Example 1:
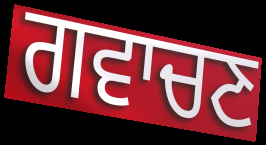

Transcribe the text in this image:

ਗਵਾਚਣ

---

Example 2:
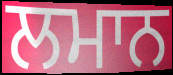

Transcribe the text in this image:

ਲਮਾਨ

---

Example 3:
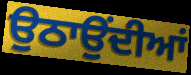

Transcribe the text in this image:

ਉਠਾਉਂਦੀਆਂ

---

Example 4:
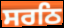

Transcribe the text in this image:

ਸਰਠਿ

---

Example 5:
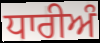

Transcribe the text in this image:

ਧਾਰੀਅੰ